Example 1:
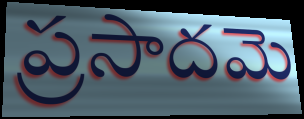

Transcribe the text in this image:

ప్రసాదమె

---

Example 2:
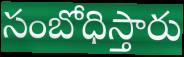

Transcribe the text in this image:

సంబోధిస్తారు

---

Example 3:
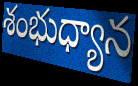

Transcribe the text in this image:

శంభుధ్యాన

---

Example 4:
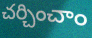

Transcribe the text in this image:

చర్చించాం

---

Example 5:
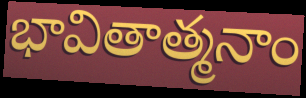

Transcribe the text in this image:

భావితాత్మనాం